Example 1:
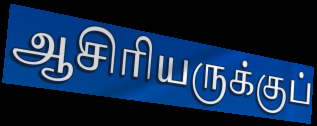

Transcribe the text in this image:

ஆசிரியருக்குப்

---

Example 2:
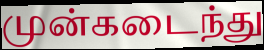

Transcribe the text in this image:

முன்கடைந்து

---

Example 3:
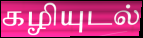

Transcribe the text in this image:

கழியுடல்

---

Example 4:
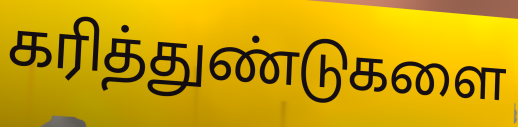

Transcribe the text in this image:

கரித்துண்டுகளை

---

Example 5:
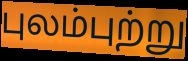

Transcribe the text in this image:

புலம்புற்று